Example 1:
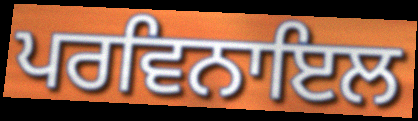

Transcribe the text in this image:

ਪਰਵਿਨਾਇਲ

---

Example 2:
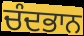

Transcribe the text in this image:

ਚੰਦਭਾਨ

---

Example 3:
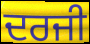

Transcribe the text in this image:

ਦਰਜੀ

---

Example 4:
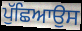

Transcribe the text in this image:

ਪੁੱਛਿਆਉਸ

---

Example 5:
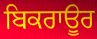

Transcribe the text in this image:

ਬਿਕਰਾਊਰ